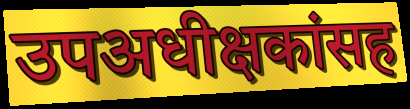
उपअधीक्षकांसह